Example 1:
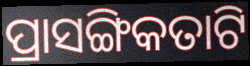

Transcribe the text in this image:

ପ୍ରାସଙ୍ଗିକତାଟି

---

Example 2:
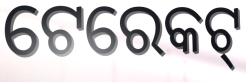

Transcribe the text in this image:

ଟେରେକଟ୍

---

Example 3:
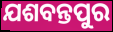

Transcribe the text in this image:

ଯଶବନ୍ତପୁର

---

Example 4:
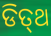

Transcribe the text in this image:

ଡିତ୍‍ଥ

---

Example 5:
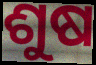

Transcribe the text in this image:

ଶୁଷ